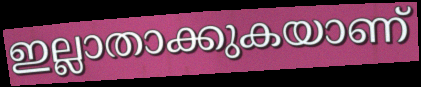
ഇല്ലാതാക്കുകയാണ്